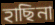
হাছিনা